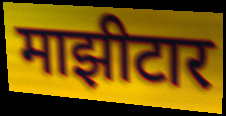
माझीटार